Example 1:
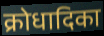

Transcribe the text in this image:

क्रोधादिका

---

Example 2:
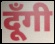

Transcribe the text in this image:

दूँगी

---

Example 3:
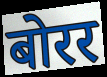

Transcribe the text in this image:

बोरर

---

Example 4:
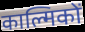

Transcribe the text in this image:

काल्मिकों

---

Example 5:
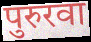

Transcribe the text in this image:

पुरुरवा